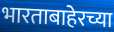
भारताबाहेरच्या